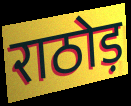
राठोड़